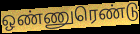
ஒண்ணுரெண்டு